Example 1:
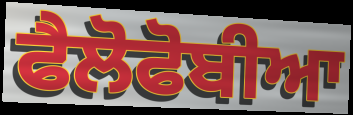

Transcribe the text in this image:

ਫੈਲੋਫੋਬੀਆ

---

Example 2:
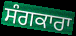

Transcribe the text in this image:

ਸੰਗਕਾਰਾ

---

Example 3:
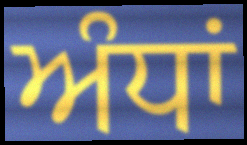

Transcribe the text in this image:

ਅੰਧਾਂ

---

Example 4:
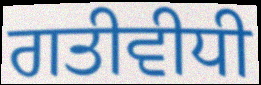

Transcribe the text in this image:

ਗਤੀਵੀਧੀ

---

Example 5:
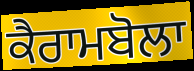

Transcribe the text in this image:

ਕੈਰਾਮਬੋਲਾ